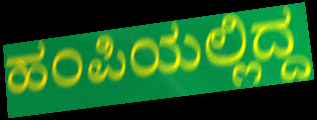
ಹಂಪಿಯಲ್ಲಿದ್ದ